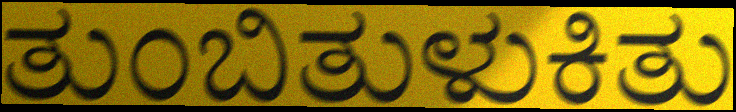
ತುಂಬಿತುಳುಕಿತು